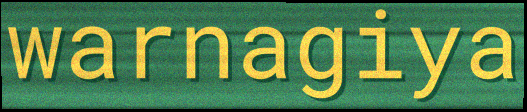
warnagiya